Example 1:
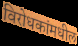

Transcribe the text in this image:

विरोधकांमधील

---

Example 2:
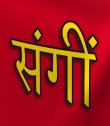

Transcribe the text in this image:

संगीं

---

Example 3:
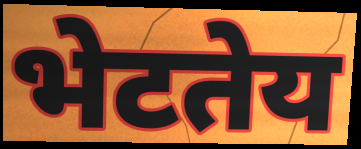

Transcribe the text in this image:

भेटतेय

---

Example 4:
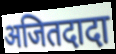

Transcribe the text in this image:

अजितदादा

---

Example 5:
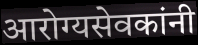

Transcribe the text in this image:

आरोग्यसेवकांनी